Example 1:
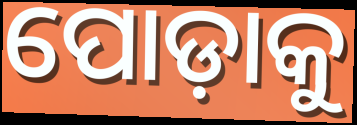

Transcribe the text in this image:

ପୋଡ଼ାକୁ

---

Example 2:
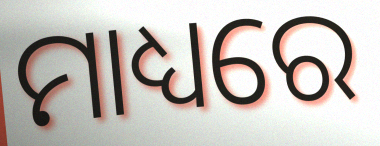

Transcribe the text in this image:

ମାଧ୍ୟରେ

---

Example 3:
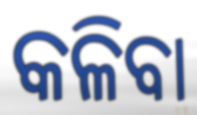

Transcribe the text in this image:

କଳିବା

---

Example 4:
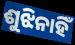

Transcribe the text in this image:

ଶୁଝିନାହିଁ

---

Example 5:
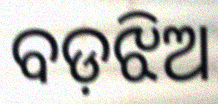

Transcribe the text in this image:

ବଡ଼ଝିଅ